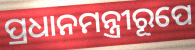
ପ୍ରଧାନମନ୍ତ୍ରୀରୂପେ